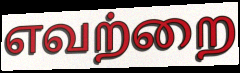
எவற்றை